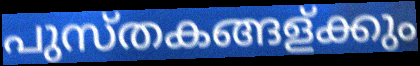
പുസ്തകങ്ങള്ക്കും